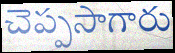
చెప్పసాగారు